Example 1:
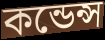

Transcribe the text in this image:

কন্ডেন্স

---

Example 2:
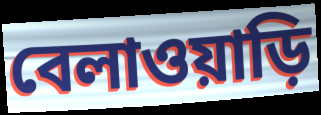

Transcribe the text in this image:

বেলাওয়াড়ি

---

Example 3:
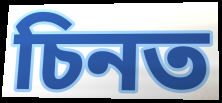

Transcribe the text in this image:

চিনত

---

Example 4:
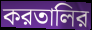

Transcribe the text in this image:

করতালির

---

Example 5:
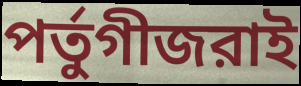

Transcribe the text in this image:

পর্তুগীজরাই